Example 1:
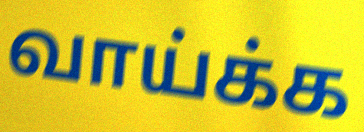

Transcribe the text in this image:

வாய்க்க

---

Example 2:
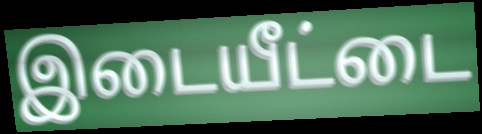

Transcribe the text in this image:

இடையீட்டை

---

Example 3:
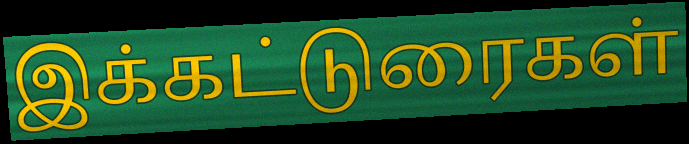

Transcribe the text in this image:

இக்கட்டுரைகள்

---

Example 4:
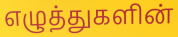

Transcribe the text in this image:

எழுத்துகளின்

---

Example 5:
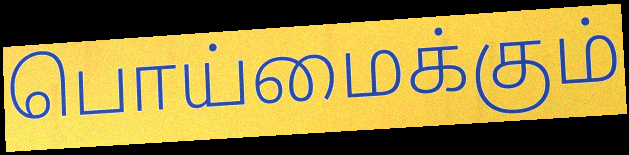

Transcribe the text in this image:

பொய்மைக்கும்